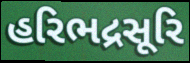
હરિભદ્રસૂરિ